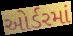
ઓર્ડરમાં